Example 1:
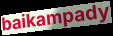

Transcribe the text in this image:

baikampady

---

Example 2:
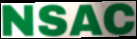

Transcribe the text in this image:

NSAC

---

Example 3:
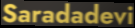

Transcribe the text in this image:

Saradadevi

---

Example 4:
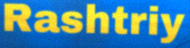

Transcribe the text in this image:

Rashtriy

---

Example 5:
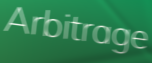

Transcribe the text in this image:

Arbitrage